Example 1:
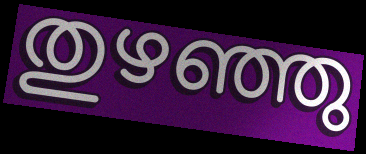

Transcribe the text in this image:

തുഴഞ്ഞു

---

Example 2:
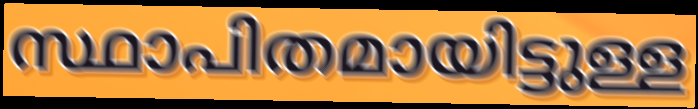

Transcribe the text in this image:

സ്ഥാപിതമായിട്ടുള്ള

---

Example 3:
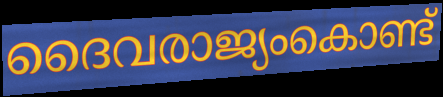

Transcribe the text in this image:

ദൈവരാജ്യംകൊണ്ട്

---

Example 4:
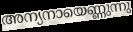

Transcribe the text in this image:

അന്യനായെണ്ണുന്നു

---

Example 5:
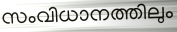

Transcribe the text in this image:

സംവിധാനത്തിലും